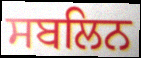
ਸਬਲਿਨ